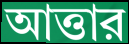
আত্তার